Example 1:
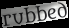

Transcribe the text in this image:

rubbed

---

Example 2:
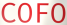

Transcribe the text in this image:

COFO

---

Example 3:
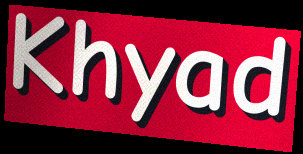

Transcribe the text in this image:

Khyad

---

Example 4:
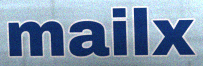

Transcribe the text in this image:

mailx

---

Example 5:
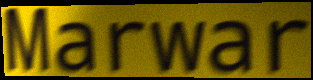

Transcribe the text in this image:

Marwar